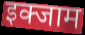
इक्जाम